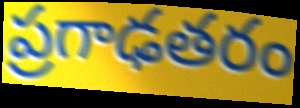
ప్రగాఢతరం